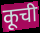
कूची